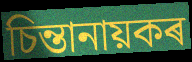
চিন্তানায়কৰ